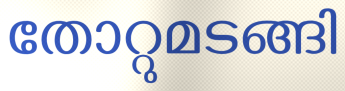
തോറ്റുമടങ്ങി